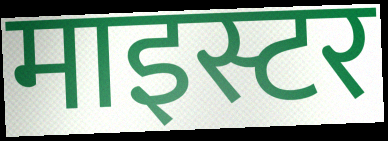
माइस्टर